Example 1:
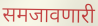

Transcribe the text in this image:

समजावणारी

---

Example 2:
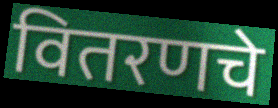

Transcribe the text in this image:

वितरणचे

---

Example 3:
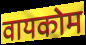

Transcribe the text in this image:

वायकोम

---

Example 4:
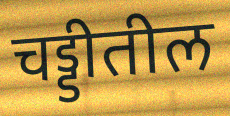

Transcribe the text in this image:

चड्डीतील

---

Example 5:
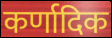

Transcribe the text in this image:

कर्णादिक